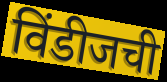
विंडीजची